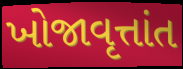
ખોજાવૃત્તાંત